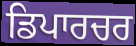
ਡਿਪਾਰਚਰ